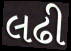
લઢી